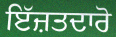
ਇੱਜ਼ਤਦਾਰੋ